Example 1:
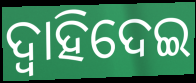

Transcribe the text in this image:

ଦ୍ବାହିଦେଇ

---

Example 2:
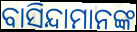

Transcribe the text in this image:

ବାସିନ୍ଦାମାନଙ୍କ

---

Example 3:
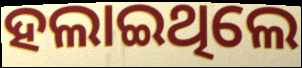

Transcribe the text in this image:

ହଲାଇଥିଲେ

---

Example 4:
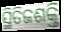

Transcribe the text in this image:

ସ୍ଥିତିଜଶକ୍ତି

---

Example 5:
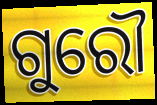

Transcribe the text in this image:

ଗୁରୌ